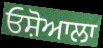
ਓਸ਼ੋਆਲਾ